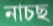
নাচছ